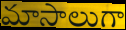
మాసాలుగా